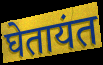
घेतायंत